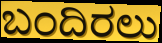
ಬಂದಿರಲು